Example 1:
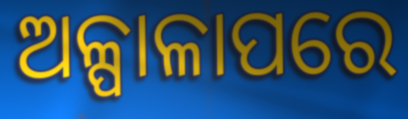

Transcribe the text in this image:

ଅଳ୍ପାଳାପରେ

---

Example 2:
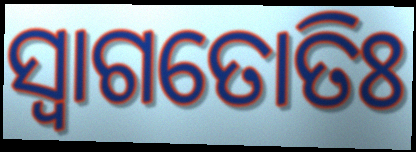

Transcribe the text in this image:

ସ୍ଵାଗତୋତିଃ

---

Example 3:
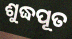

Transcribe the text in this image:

ଶୁଦ୍ଧପୂତ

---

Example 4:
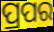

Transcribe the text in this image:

ପ୍ରପର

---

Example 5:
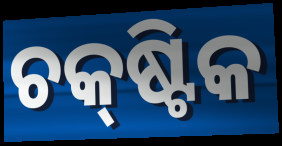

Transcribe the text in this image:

ଚକ୍‌ଷ୍ଟିକ